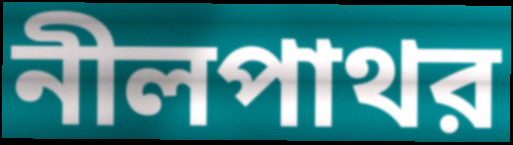
নীলপাথর